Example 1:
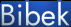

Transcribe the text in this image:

Bibek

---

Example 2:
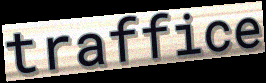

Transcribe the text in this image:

traffice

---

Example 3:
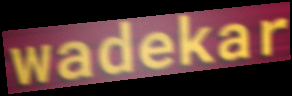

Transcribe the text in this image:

wadekar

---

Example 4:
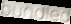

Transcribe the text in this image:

bundled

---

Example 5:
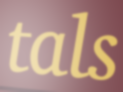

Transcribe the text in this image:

tals